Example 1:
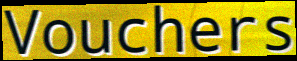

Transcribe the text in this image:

Vouchers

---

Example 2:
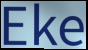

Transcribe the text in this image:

Eke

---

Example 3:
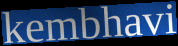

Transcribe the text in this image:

kembhavi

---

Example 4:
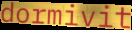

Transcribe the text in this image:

dormivit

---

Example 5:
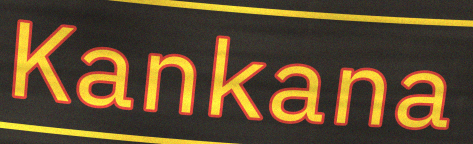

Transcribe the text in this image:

Kankana